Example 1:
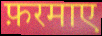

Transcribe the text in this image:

फ़रमाए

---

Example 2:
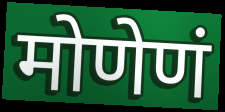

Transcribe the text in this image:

मोणेणं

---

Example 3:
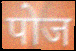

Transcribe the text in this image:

पोज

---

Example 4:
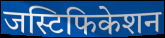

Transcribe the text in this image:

जस्टिफिकेशन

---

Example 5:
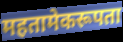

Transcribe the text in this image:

महतामेकरूपता